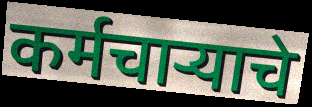
कर्मचाऱ्याचे